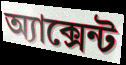
অ্যাক্সেন্ট